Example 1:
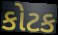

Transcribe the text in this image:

કોટક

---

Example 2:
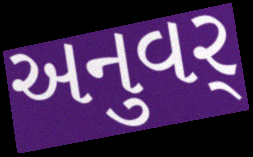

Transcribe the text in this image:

અનુવર્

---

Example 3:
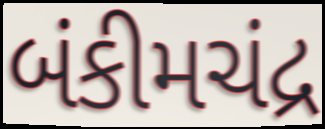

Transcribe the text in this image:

બંકીમચંદ્ર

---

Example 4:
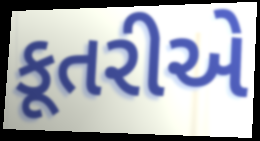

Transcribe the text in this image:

કૂતરીએ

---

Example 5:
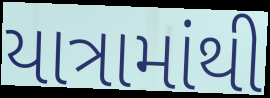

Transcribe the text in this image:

યાત્રામાંથી